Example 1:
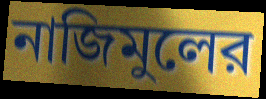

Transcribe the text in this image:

নাজিমুলের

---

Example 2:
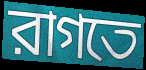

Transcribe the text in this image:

রাগতে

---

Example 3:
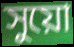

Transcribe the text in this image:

সুয়ো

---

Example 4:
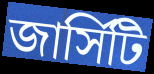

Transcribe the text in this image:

জার্সিটি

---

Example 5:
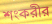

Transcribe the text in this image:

শংকরীর